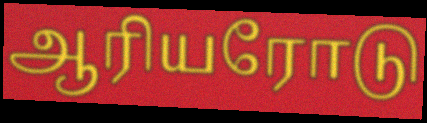
ஆரியரோடு